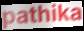
pathika